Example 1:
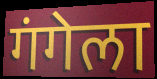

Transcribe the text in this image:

गंगेला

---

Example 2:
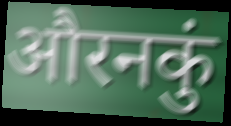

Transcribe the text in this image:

औरनकुं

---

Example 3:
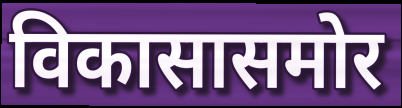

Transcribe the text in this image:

विकासासमोर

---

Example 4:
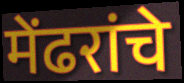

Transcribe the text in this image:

मेंढरांचे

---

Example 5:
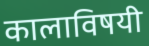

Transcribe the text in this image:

कालाविषयी